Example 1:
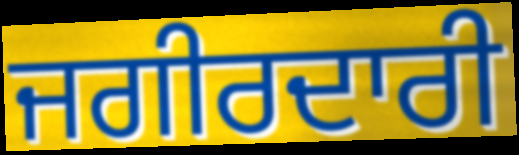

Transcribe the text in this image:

ਜਗੀਰਦਾਰੀ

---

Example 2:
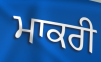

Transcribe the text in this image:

ਮਾਕਰੀ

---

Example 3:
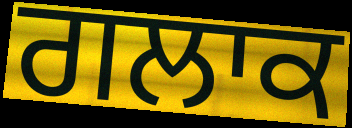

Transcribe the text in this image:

ਗਲਾਕ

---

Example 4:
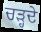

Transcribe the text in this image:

ਚਡ਼੍ਹਦੇ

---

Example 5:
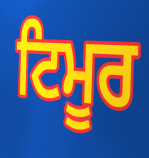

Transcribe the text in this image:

ਟਿਮੂਰ